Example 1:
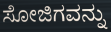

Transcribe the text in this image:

ಸೋಜಿಗವನ್ನು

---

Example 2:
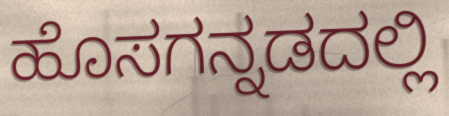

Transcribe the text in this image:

ಹೊಸಗನ್ನಡದಲ್ಲಿ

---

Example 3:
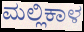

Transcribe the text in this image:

ಮಲ್ಲಿಕಾಳ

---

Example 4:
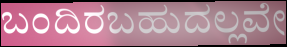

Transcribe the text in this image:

ಬಂದಿರಬಹುದಲ್ಲವೇ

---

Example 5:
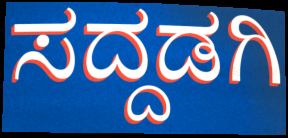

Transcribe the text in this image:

ಸದ್ದಡಗಿ